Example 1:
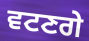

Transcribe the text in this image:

ਵਟਣਗੇ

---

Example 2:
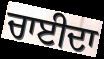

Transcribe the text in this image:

ਚਾਈਦਾ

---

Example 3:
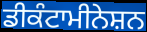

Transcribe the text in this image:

ਡੀਕੰਟਾਮੀਨੇਸ਼ਨ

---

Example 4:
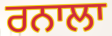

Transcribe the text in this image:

ਰਨਾਲਾ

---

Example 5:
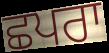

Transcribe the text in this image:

ਛਪਰਾ